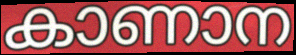
കാണാന